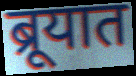
ब्रूयात